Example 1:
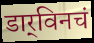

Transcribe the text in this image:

डार्विनचं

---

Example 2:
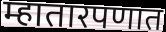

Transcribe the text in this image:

म्हातारपणात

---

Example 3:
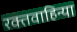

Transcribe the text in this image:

रक्तवाहिन्या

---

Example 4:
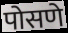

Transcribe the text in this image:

पोसणे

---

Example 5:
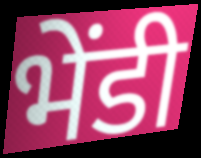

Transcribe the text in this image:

भेंडी